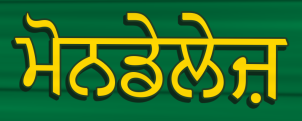
ਮੋਨਡੇਲੇਜ਼